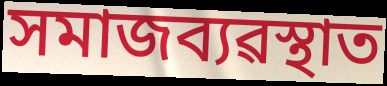
সমাজব্যৱস্থাত